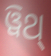
ୱିଥ୍